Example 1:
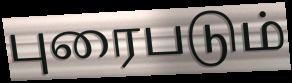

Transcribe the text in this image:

புரைபடும்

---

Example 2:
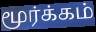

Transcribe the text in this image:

மூர்க்கம்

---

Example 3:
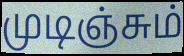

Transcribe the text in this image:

முடிஞ்சும்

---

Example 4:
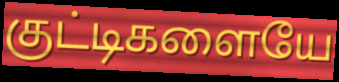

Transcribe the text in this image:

குட்டிகளையே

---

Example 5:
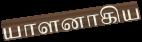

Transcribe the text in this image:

யாளனாகிய